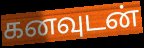
கனவுடன்